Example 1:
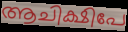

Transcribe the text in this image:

ആചിക്ഷിപേ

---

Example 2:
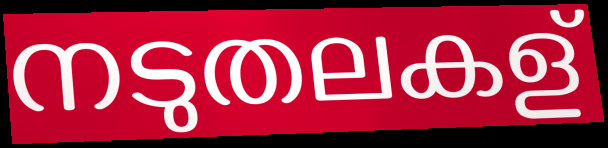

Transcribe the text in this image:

നടുതലകള്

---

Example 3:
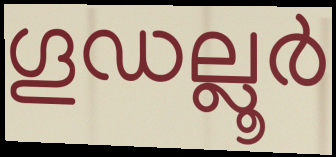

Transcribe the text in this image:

ഗൂഡല്ലൂർ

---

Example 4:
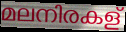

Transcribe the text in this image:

മലനിരകള്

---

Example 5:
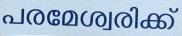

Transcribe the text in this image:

പരമേശ്വരിക്ക്